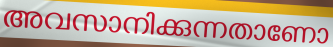
അവസാനിക്കുന്നതാണോ